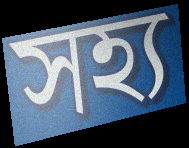
সহ্য